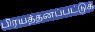
பிரயத்தனப்பட்டுக்